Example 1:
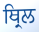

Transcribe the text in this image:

ਥ੍ਰਿਲ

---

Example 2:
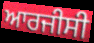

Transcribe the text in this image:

ਆਰਜੀਸੀ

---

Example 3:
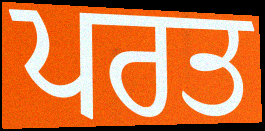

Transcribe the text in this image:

ਪਰਤ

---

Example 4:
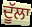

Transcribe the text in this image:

ਦੂੱਲਾ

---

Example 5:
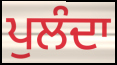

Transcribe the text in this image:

ਪੁਲੰਦਾ